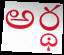
అర్థ